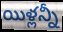
యిళ్లన్నీ